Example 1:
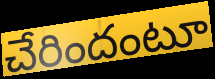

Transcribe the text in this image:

చేరిందంటూ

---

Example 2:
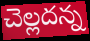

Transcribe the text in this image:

చెల్లదన్న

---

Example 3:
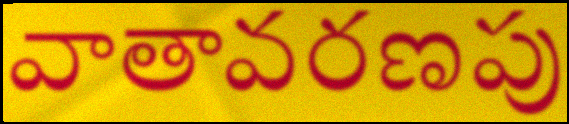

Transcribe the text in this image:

వాతావరణపు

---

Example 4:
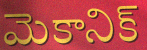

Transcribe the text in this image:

మెకానిక్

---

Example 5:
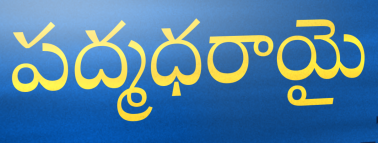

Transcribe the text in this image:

పద్మధరాయై